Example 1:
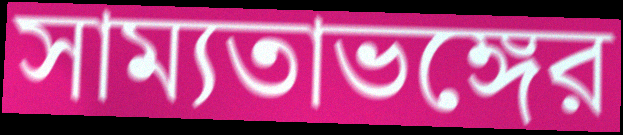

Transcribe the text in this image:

সাম্যতাভঙ্গের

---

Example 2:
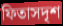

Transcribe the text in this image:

ফিতাসদৃশ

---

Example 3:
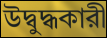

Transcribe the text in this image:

উদ্বুদ্ধকারী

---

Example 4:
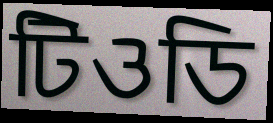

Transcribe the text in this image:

টিওডি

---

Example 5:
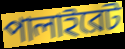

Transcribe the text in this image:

পালাইরেট